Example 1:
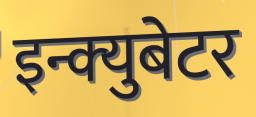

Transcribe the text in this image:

इन्क्‍युबेटर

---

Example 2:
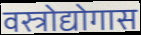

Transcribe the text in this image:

वस्त्रोद्योगास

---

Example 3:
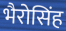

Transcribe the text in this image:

भैरोसिंह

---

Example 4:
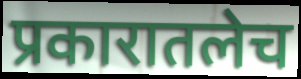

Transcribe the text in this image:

प्रकारातलेच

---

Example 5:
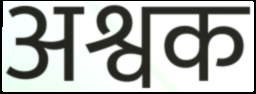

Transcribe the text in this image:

अश्वक